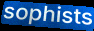
sophists